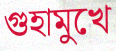
গুহামুখে